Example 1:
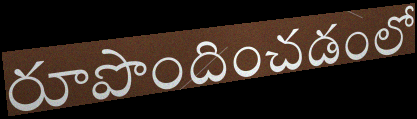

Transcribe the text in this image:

రూపొందించడంలో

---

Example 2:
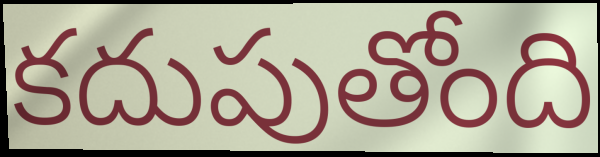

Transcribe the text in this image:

కదుపుతోంది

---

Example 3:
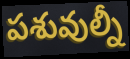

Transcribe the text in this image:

పశువుల్నీ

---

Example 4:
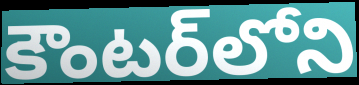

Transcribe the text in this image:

కౌంటర్‌లోని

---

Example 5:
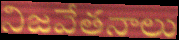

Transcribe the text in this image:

నిజవేతనాలు